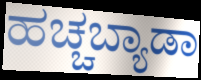
ಹಚ್ಚಬ್ಯಾಡಾ